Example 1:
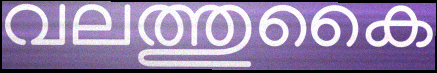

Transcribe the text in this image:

വലത്തുകൈ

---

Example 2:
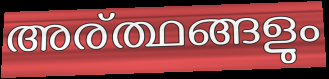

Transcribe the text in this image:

അര്ത്ഥങ്ങളും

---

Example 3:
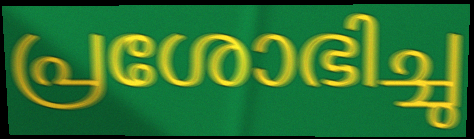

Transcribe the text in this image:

പ്രശോഭിച്ചു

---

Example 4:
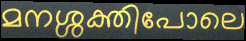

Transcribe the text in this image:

മനശ്ശക്തിപോലെ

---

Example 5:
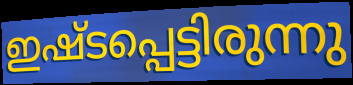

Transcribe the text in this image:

ഇഷ്ടപ്പെട്ടിരുന്നു